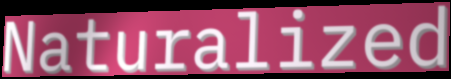
Naturalized